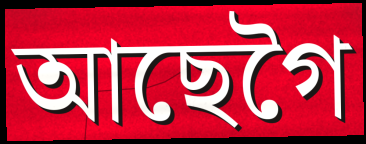
আছেগৈ